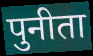
पुनीता